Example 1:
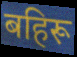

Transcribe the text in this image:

बहिरू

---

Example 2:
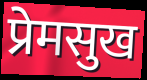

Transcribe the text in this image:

प्रेमसुख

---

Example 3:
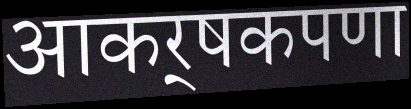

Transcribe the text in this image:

आकर्षकपणा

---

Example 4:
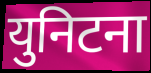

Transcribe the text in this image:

युनिटना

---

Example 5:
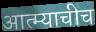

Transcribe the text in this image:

आत्म्याचीच